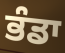
ਭੰਡਾ